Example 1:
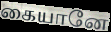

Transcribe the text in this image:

கையானே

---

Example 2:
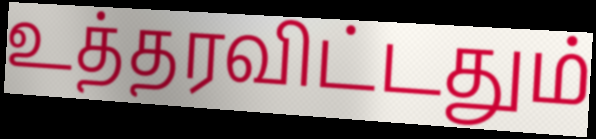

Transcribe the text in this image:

உத்தரவிட்டதும்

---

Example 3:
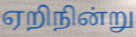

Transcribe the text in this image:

ஏறிநின்று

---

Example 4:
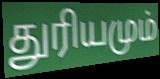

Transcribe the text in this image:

துரியமும்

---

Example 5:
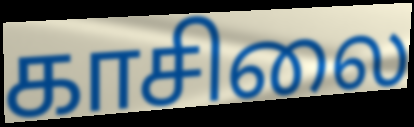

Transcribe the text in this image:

காசிலை